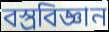
বস্ত্রবিজ্ঞান